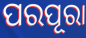
ପରପୂରା